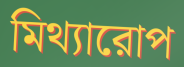
মিথ্যারোপ